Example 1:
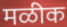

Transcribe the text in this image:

मळीक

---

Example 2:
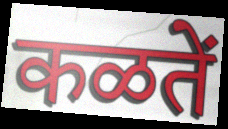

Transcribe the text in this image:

कळतें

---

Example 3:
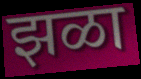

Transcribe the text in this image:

झळा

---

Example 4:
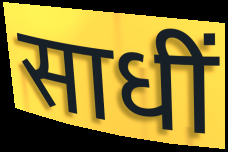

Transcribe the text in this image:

साधीं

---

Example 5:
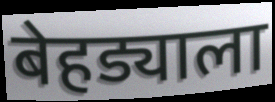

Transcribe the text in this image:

बेहड्याला